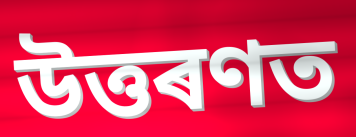
উত্তৰণত